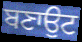
ਬਣਾਉਟ